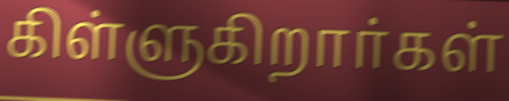
கிள்ளுகிறார்கள்